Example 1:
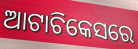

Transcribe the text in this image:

ଆଟାଚିକେସରେ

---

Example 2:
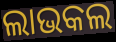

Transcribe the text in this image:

ଲାଭକଲ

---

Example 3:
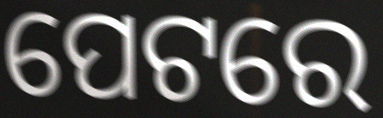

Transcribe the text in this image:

ପେଟରେ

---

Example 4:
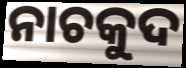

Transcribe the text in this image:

ନାଚକୁଦ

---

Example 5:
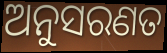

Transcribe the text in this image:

ଅନୁସରଣତ